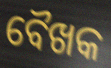
ବୈଖକ